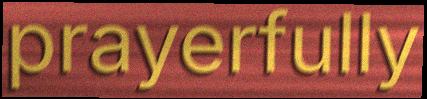
prayerfully